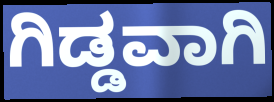
ಗಿಡ್ಡವಾಗಿ